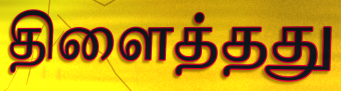
திளைத்தது